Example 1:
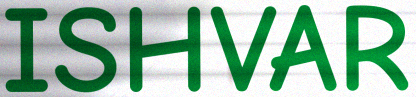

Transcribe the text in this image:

ISHVAR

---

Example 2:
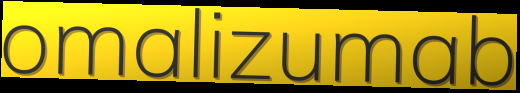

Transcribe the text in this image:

omalizumab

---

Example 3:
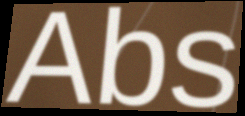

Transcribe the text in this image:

Abs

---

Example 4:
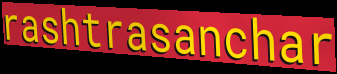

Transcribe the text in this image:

rashtrasanchar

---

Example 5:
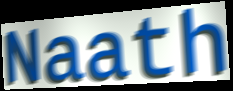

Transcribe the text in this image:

Naath